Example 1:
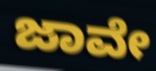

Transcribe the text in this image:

ಜಾವೇ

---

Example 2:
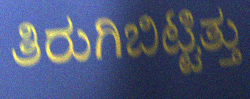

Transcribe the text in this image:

ತಿರುಗಿಬಿಟ್ಟಿತ್ತು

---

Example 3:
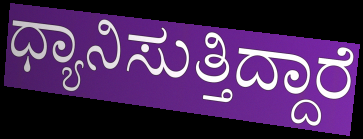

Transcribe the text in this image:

ಧ್ಯಾನಿಸುತ್ತಿದ್ದಾರೆ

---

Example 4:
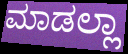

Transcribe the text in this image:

ಮಾಡಲ್ಲಾ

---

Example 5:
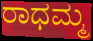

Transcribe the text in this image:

ರಾಧಮ್ಮ